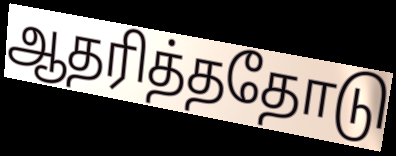
ஆதரித்ததோடு